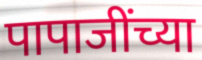
पापाजींच्या